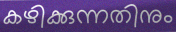
കഴിക്കുന്നതിനും